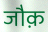
जौक़